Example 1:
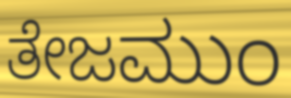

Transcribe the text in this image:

ತೇಜಮುಂ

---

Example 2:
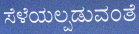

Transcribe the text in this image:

ಸೆಳೆಯಲ್ಪಡುವಂತೆ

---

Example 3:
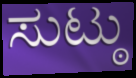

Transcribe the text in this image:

ಸುಟ್ಠು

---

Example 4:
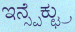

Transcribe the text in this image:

ಇನ್ಸ್ಪೆಕ್ಟ್ರು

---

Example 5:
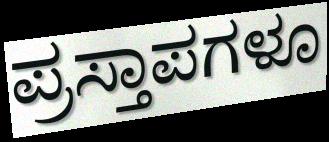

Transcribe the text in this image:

ಪ್ರಸ್ತಾಪಗಳೂ